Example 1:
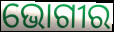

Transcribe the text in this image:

ଭୋଗୀର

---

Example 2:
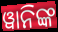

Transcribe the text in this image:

ୱାନିଙ୍କ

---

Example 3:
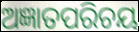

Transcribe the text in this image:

ଅଜ୍ଞାତପରିଚୟ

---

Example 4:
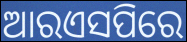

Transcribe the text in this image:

ଆରଏସପିରେ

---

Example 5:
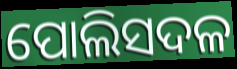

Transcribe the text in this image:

ପୋଲିସଦଳ